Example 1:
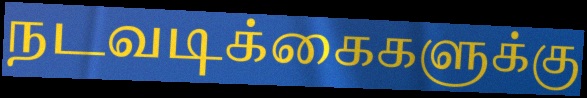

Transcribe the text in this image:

நடவடிக்கைகளுக்கு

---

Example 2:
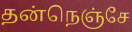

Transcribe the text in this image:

தன்நெஞ்சே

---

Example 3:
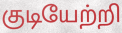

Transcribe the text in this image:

குடியேற்றி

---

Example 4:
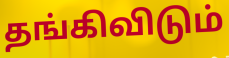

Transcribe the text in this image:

தங்கிவிடும்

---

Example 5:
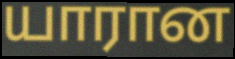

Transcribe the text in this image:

யாரான